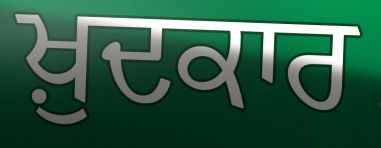
ਖ਼ੁਦਕਾਰ